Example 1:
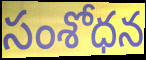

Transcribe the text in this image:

సంశోధన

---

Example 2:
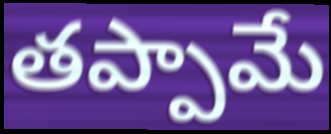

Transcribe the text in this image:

తప్పామే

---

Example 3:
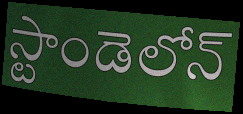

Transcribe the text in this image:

స్టాండెలోన్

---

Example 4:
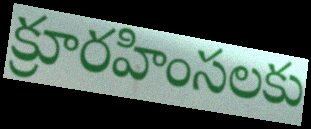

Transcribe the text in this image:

క్రూరహింసలకు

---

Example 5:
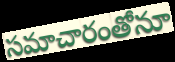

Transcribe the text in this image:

సమాచారంతోనూ